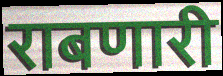
राबणारी